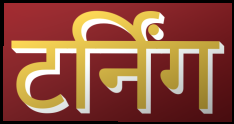
टर्निंग